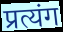
प्रत्यंग